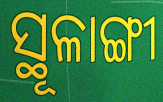
ସ୍ଥୂଳାଙ୍ଗୀ